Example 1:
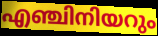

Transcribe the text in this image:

എഞ്ചിനിയറും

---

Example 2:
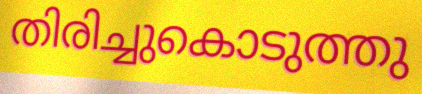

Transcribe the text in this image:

തിരിച്ചുകൊടുത്തു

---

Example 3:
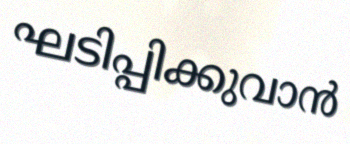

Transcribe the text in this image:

ഘടിപ്പിക്കുവാൻ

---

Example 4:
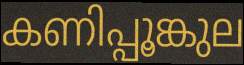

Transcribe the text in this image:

കണിപ്പൂങ്കുല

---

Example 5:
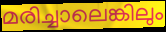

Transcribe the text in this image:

മരിച്ചാലെങ്കിലും